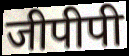
जीपीपी